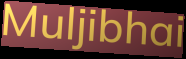
Muljibhai